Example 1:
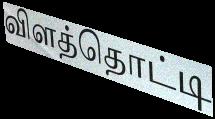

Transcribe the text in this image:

விளத்தொட்டி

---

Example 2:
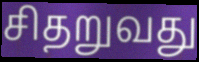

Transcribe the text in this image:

சிதறுவது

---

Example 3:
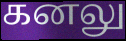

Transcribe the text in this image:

கனலு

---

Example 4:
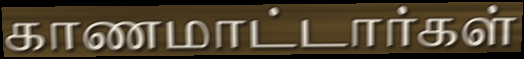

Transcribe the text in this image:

காணமாட்டார்கள்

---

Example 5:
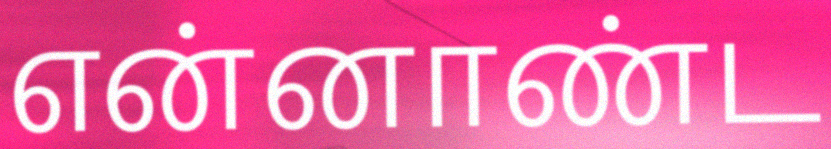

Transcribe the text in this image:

என்னாண்ட